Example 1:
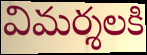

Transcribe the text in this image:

విమర్శలకి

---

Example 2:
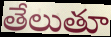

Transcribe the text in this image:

తేలుతూ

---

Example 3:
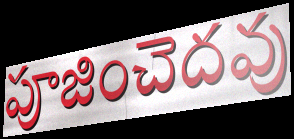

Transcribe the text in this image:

పూజించెదవు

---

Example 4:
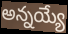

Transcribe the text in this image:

అన్నయ్యే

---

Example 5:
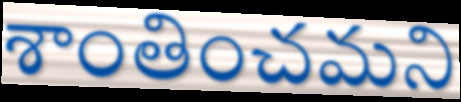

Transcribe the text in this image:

శాంతించమని